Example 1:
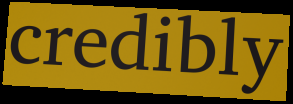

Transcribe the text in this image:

credibly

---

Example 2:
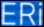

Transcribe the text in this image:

ERi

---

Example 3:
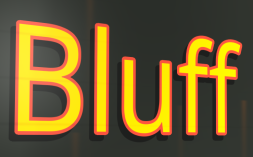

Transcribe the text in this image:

Bluff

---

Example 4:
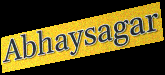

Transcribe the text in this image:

Abhaysagar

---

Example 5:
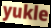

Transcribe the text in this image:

yukle